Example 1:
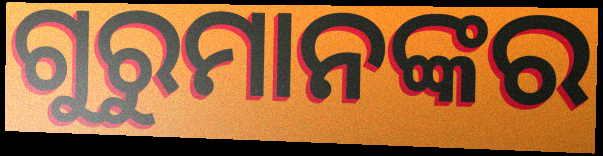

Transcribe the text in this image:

ଗୁରୁମାନଙ୍କର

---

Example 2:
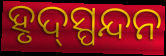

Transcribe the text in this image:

ହୃଦ୍‍ସ୍ପନ୍ଦନ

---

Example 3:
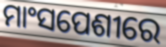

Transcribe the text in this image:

ମାଂସପେଶୀରେ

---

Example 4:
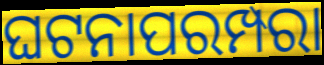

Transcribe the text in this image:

ଘଟନାପରମ୍ପରା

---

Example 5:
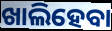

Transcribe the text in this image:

ଖାଲିହେବା